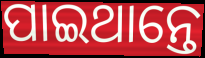
ପାଇଥାନ୍ତେ